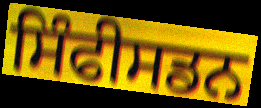
ਸਿੰਫੀਸਡਨ